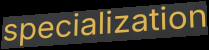
specialization